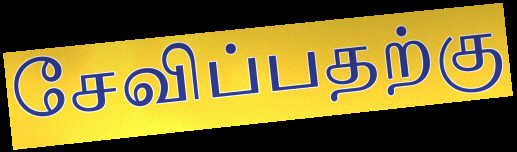
சேவிப்பதற்கு